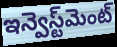
ఇన్వెస్ట్‌మెంట్